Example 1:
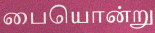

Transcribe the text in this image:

பையொன்று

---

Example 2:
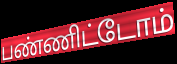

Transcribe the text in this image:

பண்ணிட்டோம்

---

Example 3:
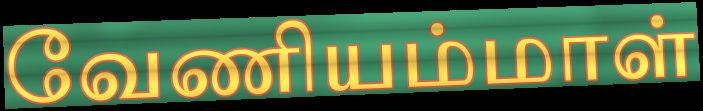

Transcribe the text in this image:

வேணியம்மாள்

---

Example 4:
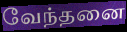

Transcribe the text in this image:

வேந்தனை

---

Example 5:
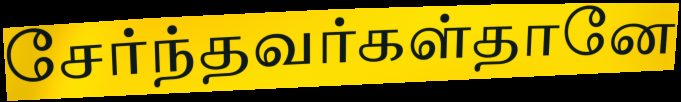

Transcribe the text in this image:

சேர்ந்தவர்கள்தானே